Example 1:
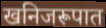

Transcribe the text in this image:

खनिजरूपात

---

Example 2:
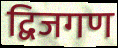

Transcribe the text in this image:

द्विजगण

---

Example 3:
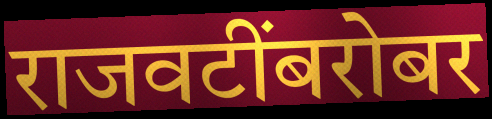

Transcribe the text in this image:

राजवटींबरोबर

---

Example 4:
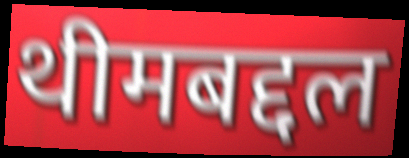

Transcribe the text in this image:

थीमबद्दल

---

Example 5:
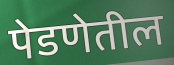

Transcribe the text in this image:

पेडणेतील